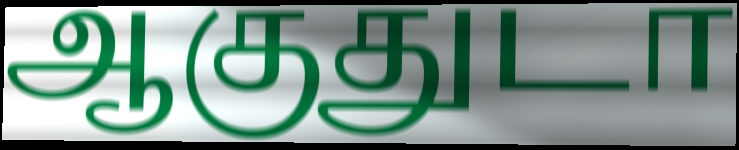
ஆகுதுடா